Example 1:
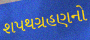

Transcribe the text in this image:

શપથગ્રહણનો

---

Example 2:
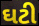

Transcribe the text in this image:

ઘટી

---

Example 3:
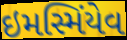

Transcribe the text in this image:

ઇમસ્મિંયેવ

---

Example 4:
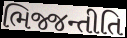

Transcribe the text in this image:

ભિજ્જન્તીતિ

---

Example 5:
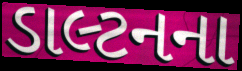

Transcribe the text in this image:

ડાલ્ટનના